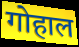
गोहाल